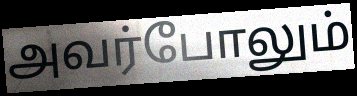
அவர்போலும்